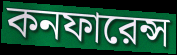
কনফারেন্স